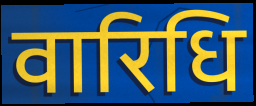
वारिधि